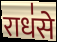
राध॑से